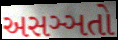
અસઞ્ઞતો